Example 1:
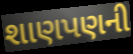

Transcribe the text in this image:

શાણપણની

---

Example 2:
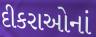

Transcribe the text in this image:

દીકરાઓનાં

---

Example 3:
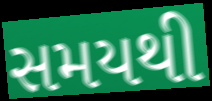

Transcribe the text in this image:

સમયથી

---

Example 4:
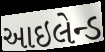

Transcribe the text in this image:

આઇલેન્ડ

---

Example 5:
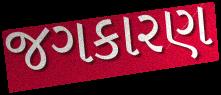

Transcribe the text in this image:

જગકારણ